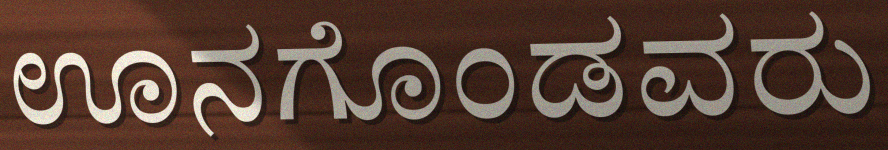
ಊನಗೊಂಡವರು